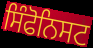
ਸਿੰਫੋਨਿਸਟ